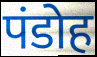
पंडोह